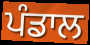
ਪੰਡਾਲ